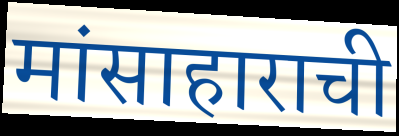
मांसाहाराची